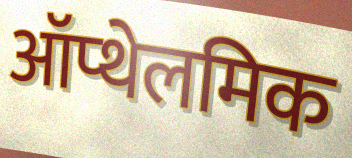
ऑप्थेलमिक